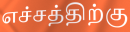
எச்சத்திற்கு